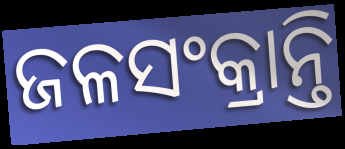
ଜଳସଂକ୍ରାନ୍ତି